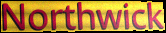
Northwick